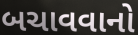
બચાવવાનો